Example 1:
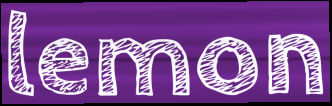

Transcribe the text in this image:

lemon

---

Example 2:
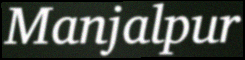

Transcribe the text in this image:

Manjalpur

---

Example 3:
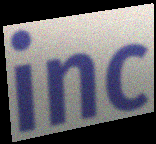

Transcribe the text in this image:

inc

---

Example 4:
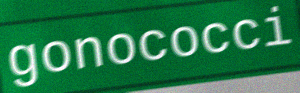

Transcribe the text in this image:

gonococci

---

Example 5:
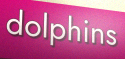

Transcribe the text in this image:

dolphins